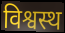
विश्वस्थ